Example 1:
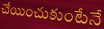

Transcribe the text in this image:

చేయించుకుంటేనే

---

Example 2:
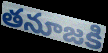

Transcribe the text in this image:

తనూజకి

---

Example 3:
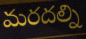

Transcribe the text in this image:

మరదల్ని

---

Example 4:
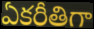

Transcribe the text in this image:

ఏకరీతిగా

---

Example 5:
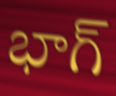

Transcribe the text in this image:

భాగ్